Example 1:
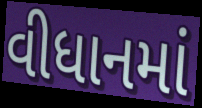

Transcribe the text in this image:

વીધાનમાં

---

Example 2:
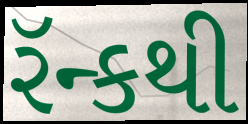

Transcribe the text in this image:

રૅન્કથી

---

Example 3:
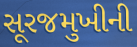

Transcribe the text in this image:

સૂરજમુખીની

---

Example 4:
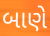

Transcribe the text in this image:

બાણે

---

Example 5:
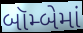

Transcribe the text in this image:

બૉમ્બેમાં